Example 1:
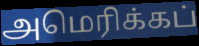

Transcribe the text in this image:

அமெரிக்கப்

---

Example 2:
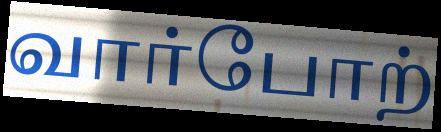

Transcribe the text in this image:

வார்போற்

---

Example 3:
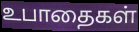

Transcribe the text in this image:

உபாதைகள்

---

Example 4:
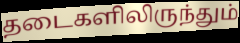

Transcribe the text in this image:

தடைகளிலிருந்தும்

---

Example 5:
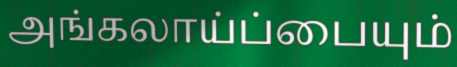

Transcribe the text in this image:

அங்கலாய்ப்பையும்